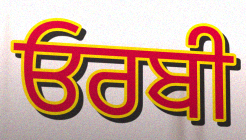
ਓਰਬੀ